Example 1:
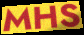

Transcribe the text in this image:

MHS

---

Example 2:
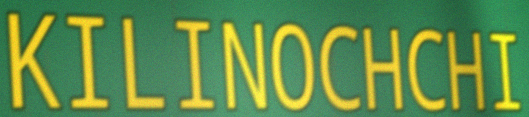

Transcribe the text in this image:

KILINOCHCHI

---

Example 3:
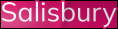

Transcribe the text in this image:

Salisbury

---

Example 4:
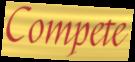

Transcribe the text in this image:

Compete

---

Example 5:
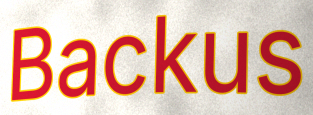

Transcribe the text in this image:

Backus